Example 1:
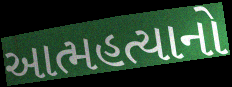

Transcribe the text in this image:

આત્મહત્યાનો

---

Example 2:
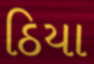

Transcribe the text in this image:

ઠિયા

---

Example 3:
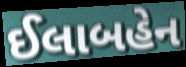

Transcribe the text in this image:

ઈલાબહેન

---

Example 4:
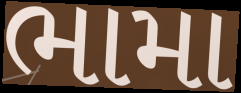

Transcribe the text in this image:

ભામા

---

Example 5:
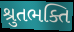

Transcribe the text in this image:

શ્રુતભક્તિ